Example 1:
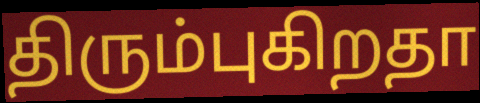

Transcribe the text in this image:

திரும்புகிறதா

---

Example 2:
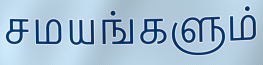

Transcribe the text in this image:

சமயங்களும்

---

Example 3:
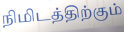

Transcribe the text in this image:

நிமிடத்திற்கும்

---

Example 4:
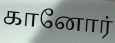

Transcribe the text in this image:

கானோர்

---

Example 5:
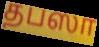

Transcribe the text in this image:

தபஸா